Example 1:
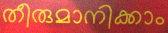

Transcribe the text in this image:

തീരുമാനിക്കാം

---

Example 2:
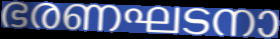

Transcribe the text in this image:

ഭരണഘടനാ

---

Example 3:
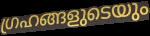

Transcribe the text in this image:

ഗ്രഹങ്ങളുടെയും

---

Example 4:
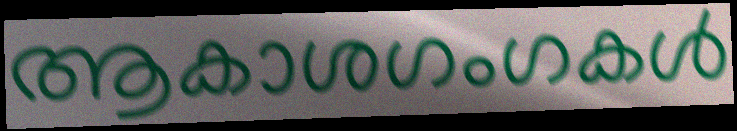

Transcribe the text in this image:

ആകാശഗംഗകൾ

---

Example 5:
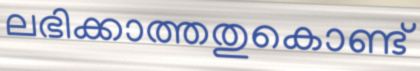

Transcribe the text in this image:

ലഭിക്കാത്തതുകൊണ്ട്